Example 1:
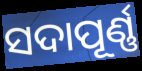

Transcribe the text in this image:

ସଦାପୂର୍ଣ୍ଣ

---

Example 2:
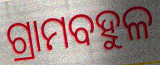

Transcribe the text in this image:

ଗ୍ରାମବହୁଳ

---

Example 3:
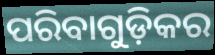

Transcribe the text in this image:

ପରିବାଗୁଡ଼ିକର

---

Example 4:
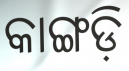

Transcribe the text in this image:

କାଙ୍ଗଡ଼ି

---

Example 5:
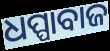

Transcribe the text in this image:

ଧପ୍ପାବାଜ